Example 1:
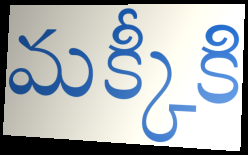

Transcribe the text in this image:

మక్కీకి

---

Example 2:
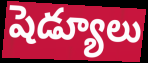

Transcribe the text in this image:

షెడ్యూలు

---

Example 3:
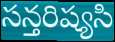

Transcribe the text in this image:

సన్తరిష్యసి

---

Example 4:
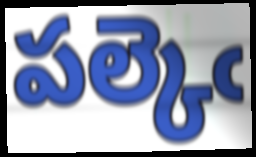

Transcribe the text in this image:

పల్కెఁ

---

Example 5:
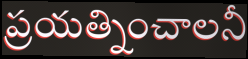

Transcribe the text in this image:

ప్రయత్నించాలనీ